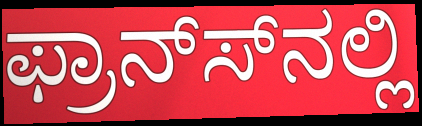
ಫ್ರಾನ್ಸ್‍ನಲ್ಲಿ